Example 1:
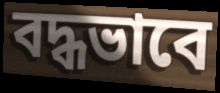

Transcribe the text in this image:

বদ্ধভাবে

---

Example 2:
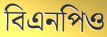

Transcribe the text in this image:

বিএনপিও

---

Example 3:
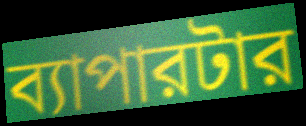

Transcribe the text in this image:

ব্যাপারটার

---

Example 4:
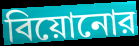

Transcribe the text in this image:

বিয়োনোর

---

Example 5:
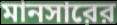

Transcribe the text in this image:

মানসারের